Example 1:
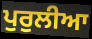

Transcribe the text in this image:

ਪੁਰੁਲੀਆ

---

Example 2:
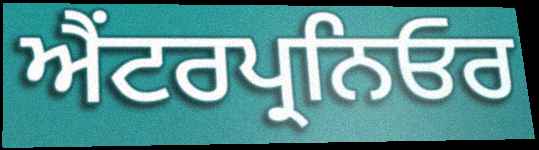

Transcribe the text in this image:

ਐਂਟਰਪ੍ਰਨਿਓਰ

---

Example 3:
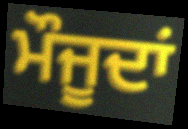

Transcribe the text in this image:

ਮੌਜੂਦਾਂ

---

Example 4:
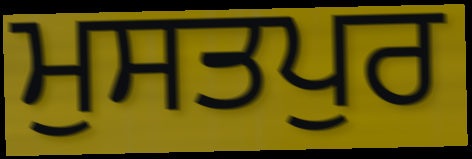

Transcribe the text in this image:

ਮੁਸਤਪੁਰ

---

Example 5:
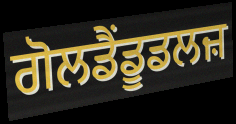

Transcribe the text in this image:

ਗੋਲਡੈਂਡੂਡਲਜ਼